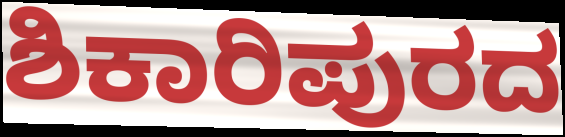
ಶಿಕಾರಿಪುರದ